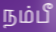
நம்பீ